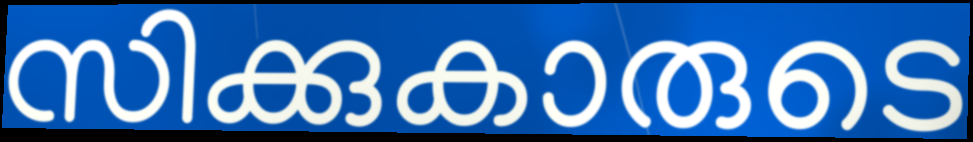
സിക്കുകാരുടെ